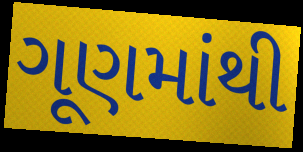
ગૂણમાંથી